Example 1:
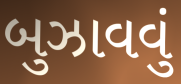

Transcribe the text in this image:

બુઝાવવું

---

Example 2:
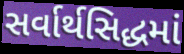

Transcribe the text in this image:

સર્વાર્થસિદ્ધમાં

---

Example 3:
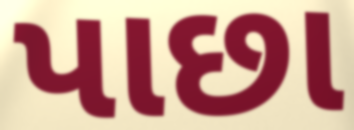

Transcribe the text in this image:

પાછા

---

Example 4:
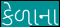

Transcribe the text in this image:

કેળાના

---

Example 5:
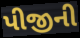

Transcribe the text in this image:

પીજીની